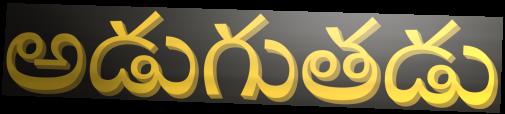
అడుగుతడు